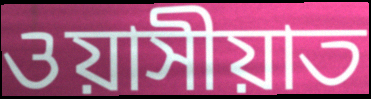
ওয়াসীয়াত